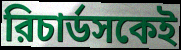
রিচার্ডসকেই